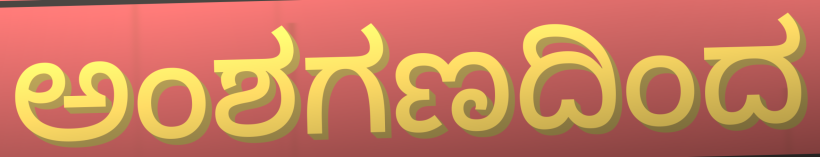
ಅಂಶಗಣದಿಂದ